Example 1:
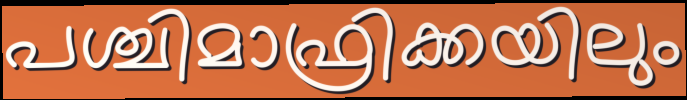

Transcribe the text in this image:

പശ്ചിമാഫ്രിക്കയിലും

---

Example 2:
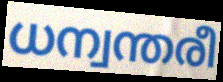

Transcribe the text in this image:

ധന്വന്തരീ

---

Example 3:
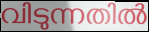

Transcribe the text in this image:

വിടുന്നതിൽ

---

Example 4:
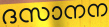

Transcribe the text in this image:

ദസാനന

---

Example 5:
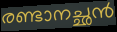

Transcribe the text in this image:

രണ്ടാനച്ഛൻ